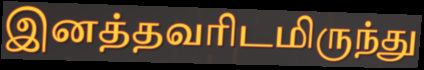
இனத்தவரிடமிருந்து